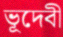
ভূদেবী